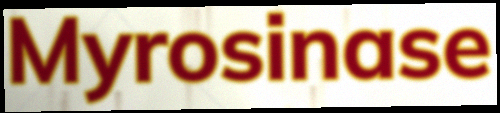
Myrosinase